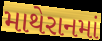
માથેરાનમાં